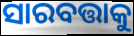
ସାରବତ୍ତାକୁ